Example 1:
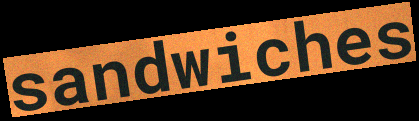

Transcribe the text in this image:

sandwiches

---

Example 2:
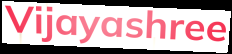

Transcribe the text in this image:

Vijayashree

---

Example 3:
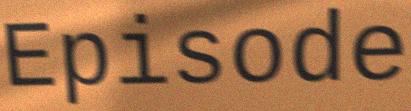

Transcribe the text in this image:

Episode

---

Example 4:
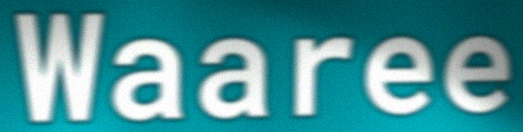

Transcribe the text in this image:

Waaree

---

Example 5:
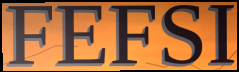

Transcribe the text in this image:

FEFSI